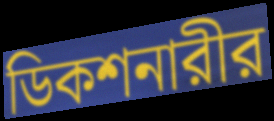
ডিকশনারীর